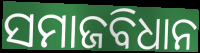
ସମାଜବିଧାନ